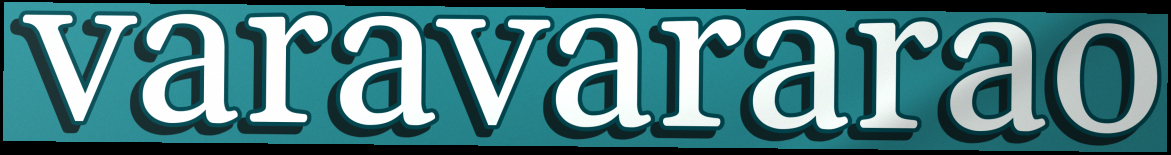
varavararao